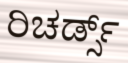
ರಿಚರ್ಡ್ಸ್